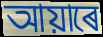
আয়াৰে